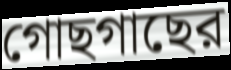
গোছগাছের